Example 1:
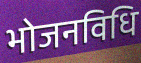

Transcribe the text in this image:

भोजनविधि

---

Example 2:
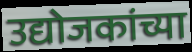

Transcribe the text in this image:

उद्योजकांच्या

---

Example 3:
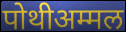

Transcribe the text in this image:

पोथीअम्मल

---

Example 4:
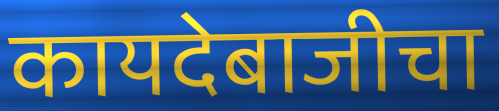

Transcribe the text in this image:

कायदेबाजीचा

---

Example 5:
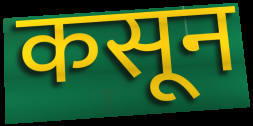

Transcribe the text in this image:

कसून